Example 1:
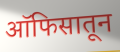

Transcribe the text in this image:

ऑफिसातून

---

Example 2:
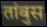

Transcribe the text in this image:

तांबुस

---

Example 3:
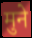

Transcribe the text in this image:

मुने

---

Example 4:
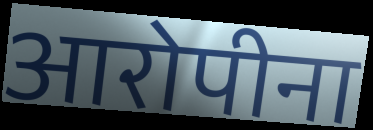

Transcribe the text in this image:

आरोपीना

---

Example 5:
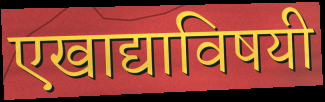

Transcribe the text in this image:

एखाद्याविषयी